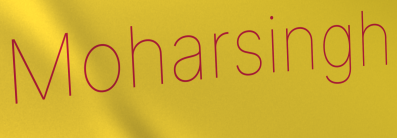
Moharsingh